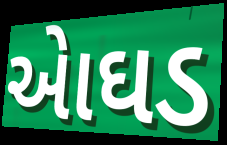
એાઘડ